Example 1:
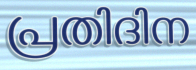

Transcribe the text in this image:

പ്രതിദിന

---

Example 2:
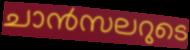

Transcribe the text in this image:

ചാൻസലറുടെ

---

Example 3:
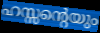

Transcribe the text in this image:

ഹസ്സന്റെയും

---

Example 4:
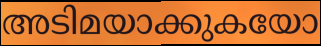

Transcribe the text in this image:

അടിമയാക്കുകയോ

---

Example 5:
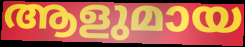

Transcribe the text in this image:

ആളുമായ